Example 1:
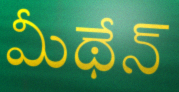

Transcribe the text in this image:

మీథేన్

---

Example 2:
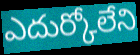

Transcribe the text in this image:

ఎదుర్కోలేని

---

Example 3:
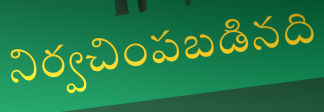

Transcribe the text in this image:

నిర్వచింపబడినది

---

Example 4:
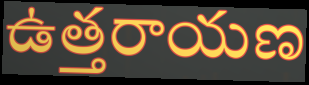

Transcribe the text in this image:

ఉత్తరాయణ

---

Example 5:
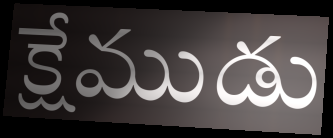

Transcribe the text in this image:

క్షేముడు